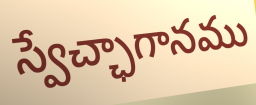
స్వేచ్ఛాగానము